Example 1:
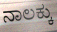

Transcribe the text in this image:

ನಾಲಕ್ಕು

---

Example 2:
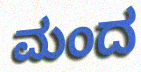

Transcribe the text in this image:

ಮಂದ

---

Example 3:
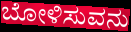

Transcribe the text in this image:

ಬೋಳಿಸುವನು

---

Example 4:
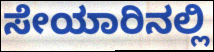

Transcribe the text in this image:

ಸೇಯಾರಿನಲ್ಲಿ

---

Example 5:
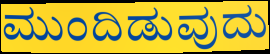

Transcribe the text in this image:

ಮುಂದಿಡುವುದು